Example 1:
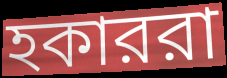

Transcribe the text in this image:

হকাররা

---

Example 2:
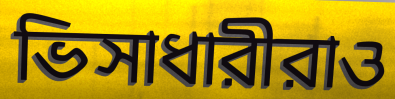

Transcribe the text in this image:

ভিসাধারীরাও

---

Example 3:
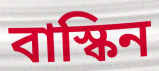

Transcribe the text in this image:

বাস্কিন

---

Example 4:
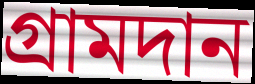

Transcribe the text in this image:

গ্রামদান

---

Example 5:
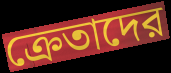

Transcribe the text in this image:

ক্রেতাদের